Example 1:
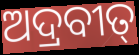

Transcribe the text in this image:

ଅଦ୍ରବୀତ୍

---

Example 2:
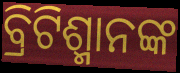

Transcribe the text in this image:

ବ୍ରିଟିଶ୍ମାନଙ୍କ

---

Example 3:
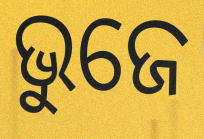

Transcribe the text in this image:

ଭୁଜେ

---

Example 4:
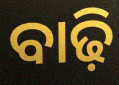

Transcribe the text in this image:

ବାଢ଼ି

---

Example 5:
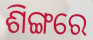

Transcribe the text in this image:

ଶିଙ୍ଗରେ